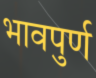
भावपुर्ण